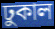
ঢুকাল